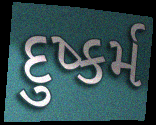
દુષ્કર્મ